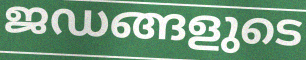
ജഡങ്ങളുടെ